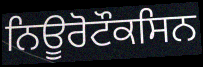
ਨਿਊਰੋਟੌਕਸਿਨ